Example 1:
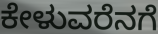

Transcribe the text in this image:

ಕೇಳುವರೆನಗೆ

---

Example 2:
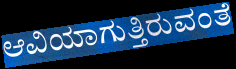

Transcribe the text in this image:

ಆವಿಯಾಗುತ್ತಿರುವಂತೆ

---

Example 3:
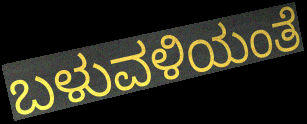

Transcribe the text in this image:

ಬಳುವಳಿಯಂತೆ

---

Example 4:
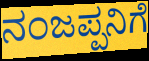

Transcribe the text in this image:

ನಂಜಪ್ಪನಿಗೆ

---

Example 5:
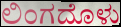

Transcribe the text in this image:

ಲಿಂಗದೊಳು